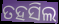
ତହସିଲ